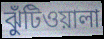
ঝুঁটিওয়ালা